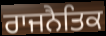
ਰਾਜਨੈਤਿਕ